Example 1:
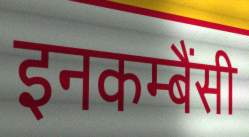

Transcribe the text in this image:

इनकम्बैंसी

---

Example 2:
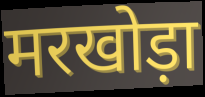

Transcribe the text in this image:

मरखोड़ा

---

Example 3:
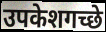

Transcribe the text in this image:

उपकेशगच्छे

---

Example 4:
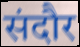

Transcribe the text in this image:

संदौर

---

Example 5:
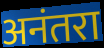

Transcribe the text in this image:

अनंतरा